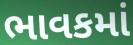
ભાવકમાં